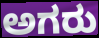
ಅಗರು